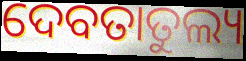
ଦେବତାତୁଲ୍ୟ